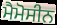
ਮੈਮੋਸੀਨ